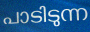
പാടിടുന്ന